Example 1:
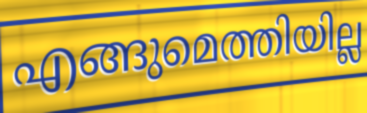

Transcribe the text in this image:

എങ്ങുമെത്തിയില്ല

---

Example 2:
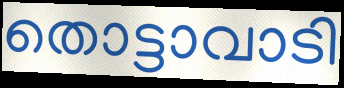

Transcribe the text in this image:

തൊട്ടാവാടി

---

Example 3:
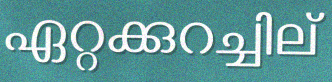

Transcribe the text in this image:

ഏറ്റക്കുറച്ചില്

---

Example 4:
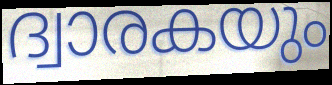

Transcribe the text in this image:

ദ്വാരകയും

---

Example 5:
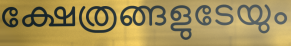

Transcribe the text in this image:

ക്ഷേത്രങ്ങളുടേയും